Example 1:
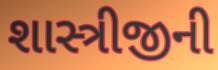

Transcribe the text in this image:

શાસ્ત્રીજીની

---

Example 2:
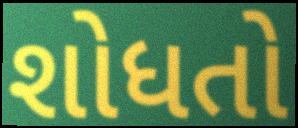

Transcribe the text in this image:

શોધતો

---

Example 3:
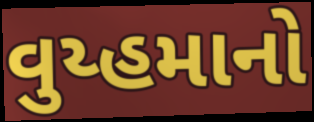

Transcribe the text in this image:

વુય્હમાનો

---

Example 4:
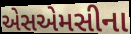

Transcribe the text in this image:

એસએમસીના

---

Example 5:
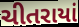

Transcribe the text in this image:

ચીતરાયાં